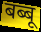
बब्बू